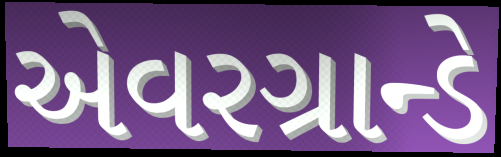
એવરગ્રાન્ડે